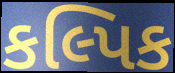
કલ્પિક